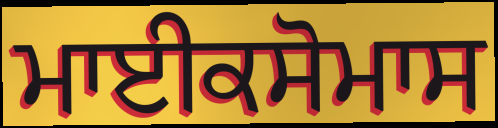
ਮਾਈਕਸੋਮਾਸ